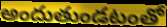
అందుతుండటంతో